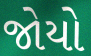
જોયો